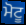
ਮੋਟੂ